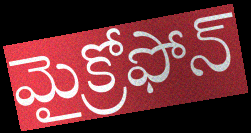
మైక్రోఫోన్